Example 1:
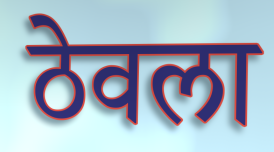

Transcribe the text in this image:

ठेवला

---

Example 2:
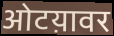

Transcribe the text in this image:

ओटय़ावर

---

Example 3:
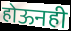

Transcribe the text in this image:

होऊनही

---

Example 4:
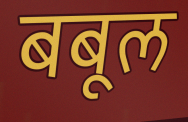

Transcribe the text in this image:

बबूल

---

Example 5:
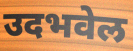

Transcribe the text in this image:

उदभवेल